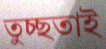
তুচ্ছতাই